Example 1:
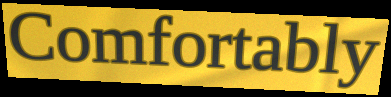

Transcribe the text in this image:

Comfortably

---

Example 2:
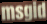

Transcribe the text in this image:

msgid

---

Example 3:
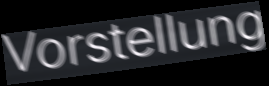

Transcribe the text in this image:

Vorstellung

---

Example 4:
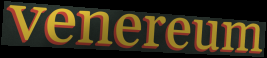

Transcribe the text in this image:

venereum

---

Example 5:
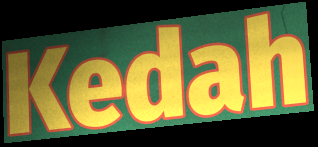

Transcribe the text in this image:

Kedah